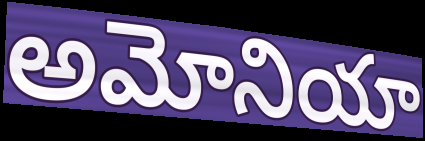
అమోనియా